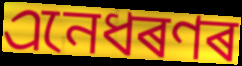
এনেধৰণৰ